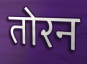
तोरन